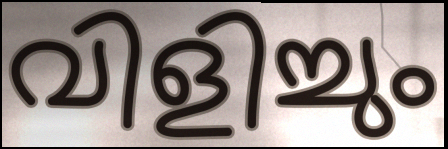
വിളിച്ചും